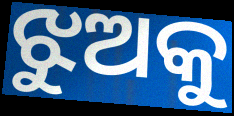
ଝୁଅକୁ